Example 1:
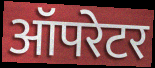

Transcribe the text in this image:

ऑपरेटर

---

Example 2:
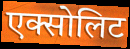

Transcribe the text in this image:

एक्सोलिट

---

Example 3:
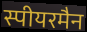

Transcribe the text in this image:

स्पीयरमैन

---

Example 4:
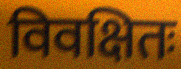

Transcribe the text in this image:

विवक्षितः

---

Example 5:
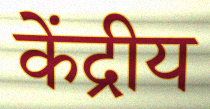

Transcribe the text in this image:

केंद्रीय